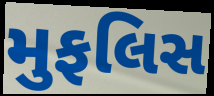
મુફલિસ